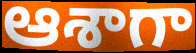
ఆశాగా